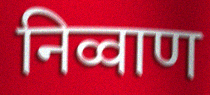
निव्वाण